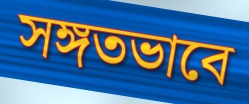
সঙ্গতভাবে